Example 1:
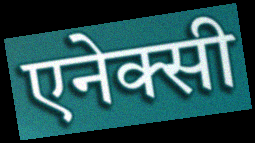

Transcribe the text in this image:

एनेक्‍सी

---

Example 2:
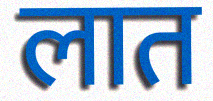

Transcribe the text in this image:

लात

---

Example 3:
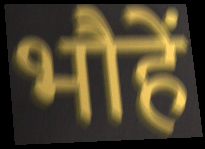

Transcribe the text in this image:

भौहें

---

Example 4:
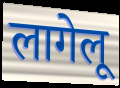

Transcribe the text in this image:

लागेलू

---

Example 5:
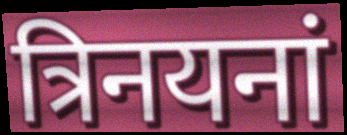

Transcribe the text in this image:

त्रिनयनां